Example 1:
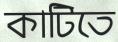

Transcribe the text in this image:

কাটিতে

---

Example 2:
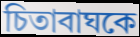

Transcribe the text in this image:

চিতাবাঘকে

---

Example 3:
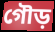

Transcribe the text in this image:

গৌড়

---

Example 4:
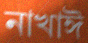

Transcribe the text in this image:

নাখাঈ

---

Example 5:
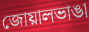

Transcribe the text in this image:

জোয়ালভাঙা